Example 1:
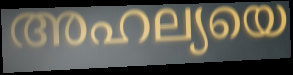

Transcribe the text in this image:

അഹല്യയെ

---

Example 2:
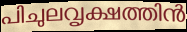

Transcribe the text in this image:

പിചുലവൃക്ഷത്തിൻ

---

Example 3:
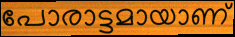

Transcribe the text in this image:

പോരാട്ടമായാണ്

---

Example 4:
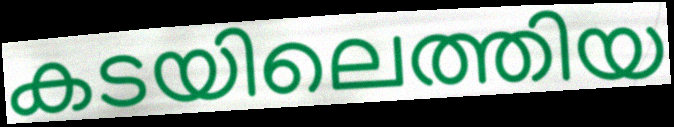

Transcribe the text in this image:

കടയിലെത്തിയ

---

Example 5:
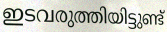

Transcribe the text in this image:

ഇടവരുത്തിയിട്ടുണ്ട്